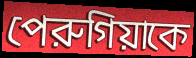
পেরুগিয়াকে